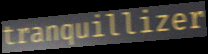
tranquillizer